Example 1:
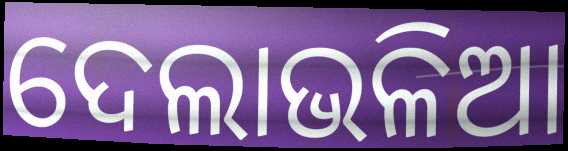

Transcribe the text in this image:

ଦେଲାଭଳିଆ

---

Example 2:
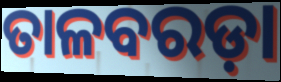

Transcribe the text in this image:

ତାଳବରଡ଼ା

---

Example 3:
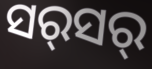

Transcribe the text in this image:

ସର୍‍ସର୍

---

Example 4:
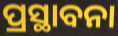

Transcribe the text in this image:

ପ୍ରସ୍ଥାବନା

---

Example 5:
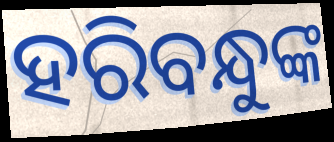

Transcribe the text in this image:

ହରିବନ୍ଧୁଙ୍କ